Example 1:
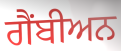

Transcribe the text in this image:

ਗੈਂਬੀਅਨ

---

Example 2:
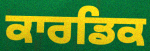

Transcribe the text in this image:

ਕਾਰਡਿਕ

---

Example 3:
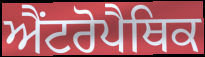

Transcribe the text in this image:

ਐਂਟਰੋਪੈਥਿਕ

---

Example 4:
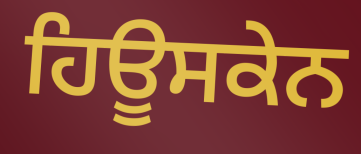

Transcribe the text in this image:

ਹਿਊਸਕੇਨ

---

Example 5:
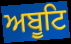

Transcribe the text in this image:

ਅਬੂਟਿ